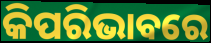
କିପରିଭାବରେ